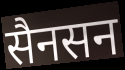
सैनसन